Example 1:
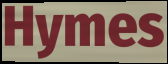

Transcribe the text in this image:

Hymes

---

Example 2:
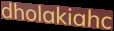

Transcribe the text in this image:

dholakiahc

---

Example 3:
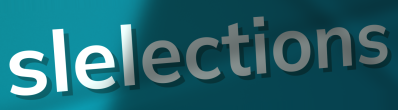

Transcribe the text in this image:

slelections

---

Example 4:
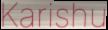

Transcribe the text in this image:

Karishu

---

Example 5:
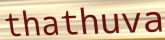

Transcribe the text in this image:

thathuva